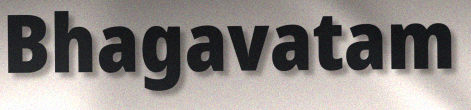
Bhagavatam